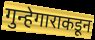
गुन्हेगाराकडून